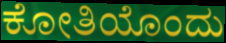
ಕೋತಿಯೊಂದು